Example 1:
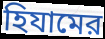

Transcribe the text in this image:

হিযামের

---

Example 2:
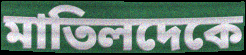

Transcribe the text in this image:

মাতিলদেকে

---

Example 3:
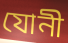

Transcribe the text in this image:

যোনী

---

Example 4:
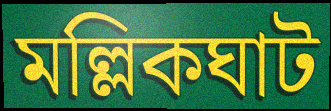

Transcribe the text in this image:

মল্লিকঘাট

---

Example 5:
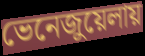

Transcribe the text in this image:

ভেনেজুয়েলায়